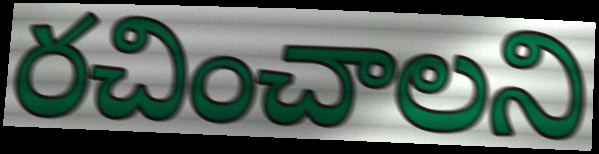
రచించాలని